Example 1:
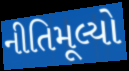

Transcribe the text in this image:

નીતિમૂલ્યો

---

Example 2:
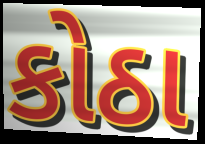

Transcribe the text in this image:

કોઠા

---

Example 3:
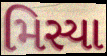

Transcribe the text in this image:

મિસ્યા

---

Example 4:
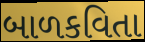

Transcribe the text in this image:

બાળકવિતા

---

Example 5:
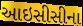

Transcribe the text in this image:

આઇસીસીના